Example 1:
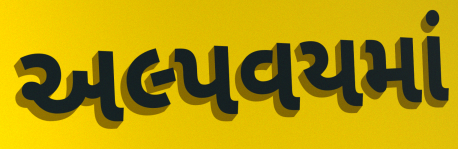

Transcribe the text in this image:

અલ્પવયમાં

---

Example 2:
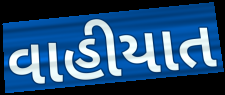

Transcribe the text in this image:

વાહીયાત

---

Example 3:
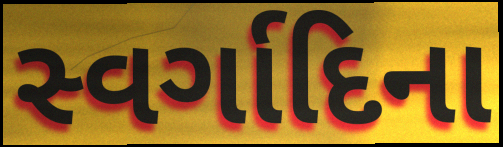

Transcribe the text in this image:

સ્વર્ગાદિના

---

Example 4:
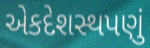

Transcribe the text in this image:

એકદેશસ્થપણું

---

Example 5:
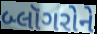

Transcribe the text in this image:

બ્લૉગરોને